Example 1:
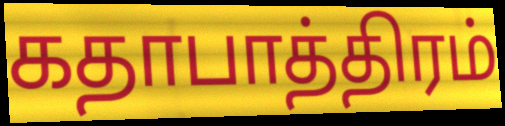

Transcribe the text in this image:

கதாபாத்திரம்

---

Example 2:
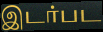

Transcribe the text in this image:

இடர்பட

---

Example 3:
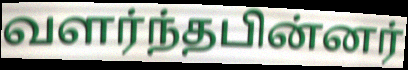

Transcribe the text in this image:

வளர்ந்தபின்னர்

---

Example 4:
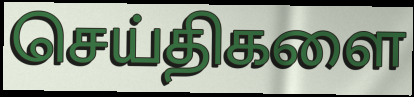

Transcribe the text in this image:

செய்திகளை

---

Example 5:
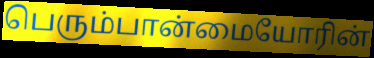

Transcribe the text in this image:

பெரும்பான்மையோரின்